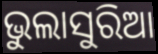
ଭୁଲାସୁରିଆ